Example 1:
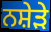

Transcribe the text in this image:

ਨਸ਼ੇੜੇ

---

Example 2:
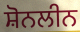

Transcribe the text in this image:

ਸ਼ੋਨਲੀਨ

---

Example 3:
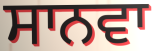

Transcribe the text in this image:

ਸਾਨਵਾ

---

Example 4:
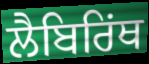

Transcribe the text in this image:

ਲੈਬਿਰਿਂਥ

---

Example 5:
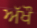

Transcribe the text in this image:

ਅੱਖੌ